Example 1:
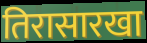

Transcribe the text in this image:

तिरासारखा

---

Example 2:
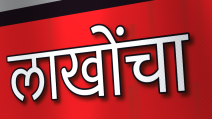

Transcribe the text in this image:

लाखोंचा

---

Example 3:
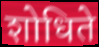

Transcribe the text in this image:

शोधिते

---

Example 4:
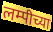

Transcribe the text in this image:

लम्पीच्या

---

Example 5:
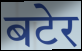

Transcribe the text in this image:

बटेर